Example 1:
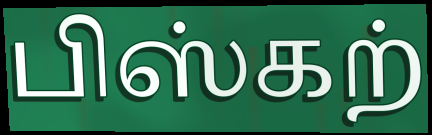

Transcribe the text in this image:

பிஸ்கற்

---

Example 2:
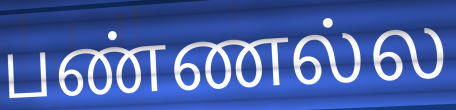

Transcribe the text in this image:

பண்ணல்ல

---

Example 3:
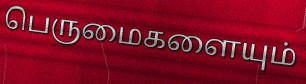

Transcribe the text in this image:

பெருமைகளையும்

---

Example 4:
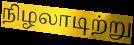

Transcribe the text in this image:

நிழலாடிற்று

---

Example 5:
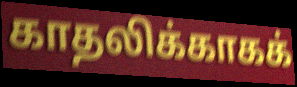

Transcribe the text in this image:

காதலிக்காகக்